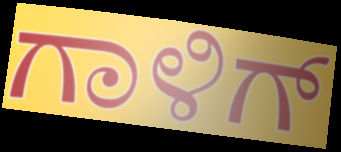
ಗಾಳಿಗ್